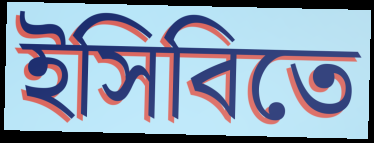
ইসিবিতে